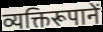
व्यक्तिरूपानें